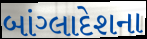
બાંગ્લાદેશના